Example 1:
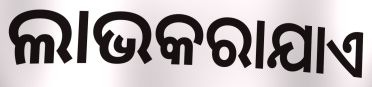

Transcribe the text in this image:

ଲାଭକରାଯାଏ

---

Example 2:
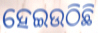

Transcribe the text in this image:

ହେଇଉଠିଛି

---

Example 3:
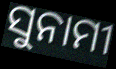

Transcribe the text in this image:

ସୁନାମୀ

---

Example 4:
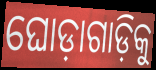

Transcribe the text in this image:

ଘୋଡ଼ାଗାଡ଼ିକୁ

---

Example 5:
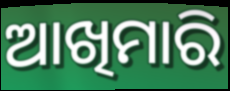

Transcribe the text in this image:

ଆଖିମାରି